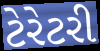
ટેરેટરી